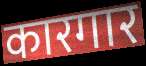
कारगार